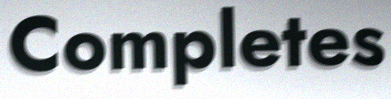
Completes